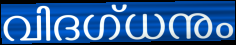
വിദഗ്ധനും